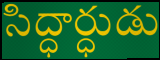
సిద్ధార్ధుడు